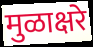
मुळाक्षरे